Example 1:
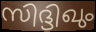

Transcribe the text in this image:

സിദ്ദിഖും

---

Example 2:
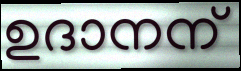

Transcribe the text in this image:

ഉദാനന്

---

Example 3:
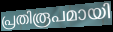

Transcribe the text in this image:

പ്രതിരൂപമായി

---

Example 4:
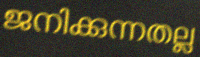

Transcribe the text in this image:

ജനിക്കുന്നതല്ല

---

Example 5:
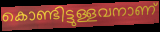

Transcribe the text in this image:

കൊണ്ടിട്ടുള്ളവനാണ്